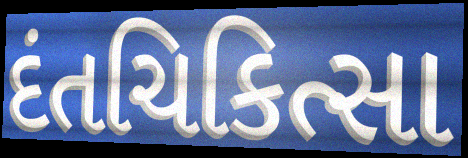
દંતચિકિત્સા